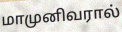
மாமுனிவரால்